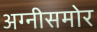
अग्नीसमोर